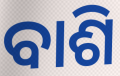
ବାଶି